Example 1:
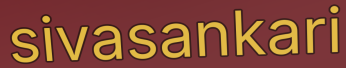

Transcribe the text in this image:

sivasankari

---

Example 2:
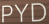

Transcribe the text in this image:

PYD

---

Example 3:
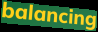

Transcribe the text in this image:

balancing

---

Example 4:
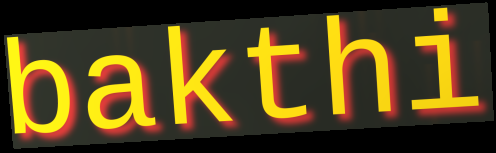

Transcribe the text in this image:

bakthi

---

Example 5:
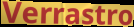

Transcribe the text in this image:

Verrastro